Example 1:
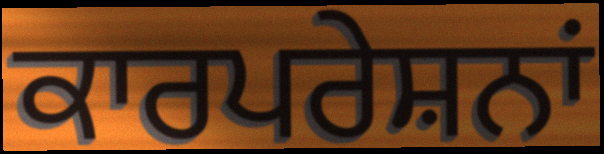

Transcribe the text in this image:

ਕਾਰਪਰੇਸ਼ਨਾਂ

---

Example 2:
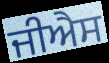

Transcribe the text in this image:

ਜੀਐਸ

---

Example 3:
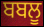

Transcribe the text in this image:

ਬਬਲੂ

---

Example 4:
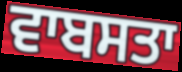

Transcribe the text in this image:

ਵਾਬਸਤਾ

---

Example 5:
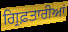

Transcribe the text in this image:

ਗ੍ਰਿਫ਼ਤਾਰੀਆਂ